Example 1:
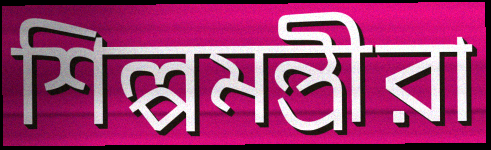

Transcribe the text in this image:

শিল্পমন্ত্রীরা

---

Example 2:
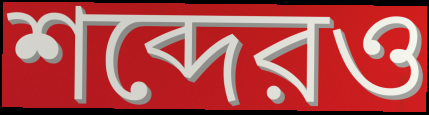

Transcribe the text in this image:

শব্দেরও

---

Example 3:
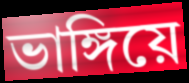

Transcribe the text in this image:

ভাঙ্গিয়ে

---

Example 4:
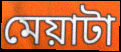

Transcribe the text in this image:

মেয়াটা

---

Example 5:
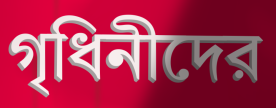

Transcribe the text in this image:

গৃধিনীদের